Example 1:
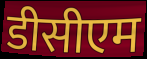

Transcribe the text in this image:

डीसीएम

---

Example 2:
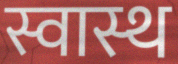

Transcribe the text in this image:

स्वास्थ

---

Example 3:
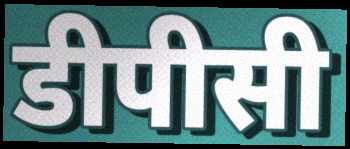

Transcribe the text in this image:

डीपीसी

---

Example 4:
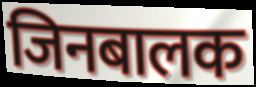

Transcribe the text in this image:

जिनबालक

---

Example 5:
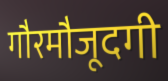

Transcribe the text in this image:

गौरमौजूदगी